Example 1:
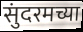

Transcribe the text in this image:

सुंदरमच्या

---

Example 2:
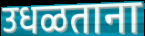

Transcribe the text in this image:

उधळताना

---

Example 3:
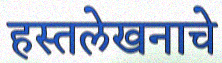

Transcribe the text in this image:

हस्तलेखनाचे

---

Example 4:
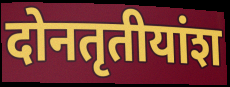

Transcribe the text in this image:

दोनतृतीयांश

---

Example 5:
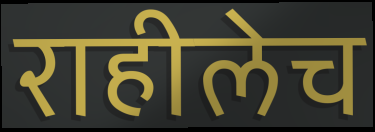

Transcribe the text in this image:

राहीलेच